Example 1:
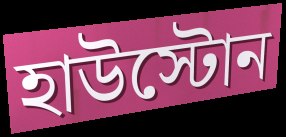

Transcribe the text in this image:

হাউস্টোন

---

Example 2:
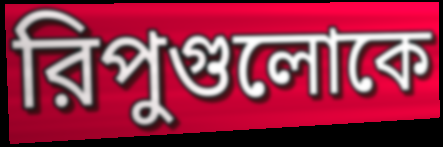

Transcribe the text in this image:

রিপুগুলোকে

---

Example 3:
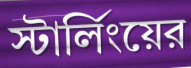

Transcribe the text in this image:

স্টার্লিংয়ের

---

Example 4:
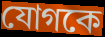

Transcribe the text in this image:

যোগকে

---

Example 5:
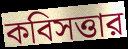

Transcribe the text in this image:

কবিসত্তার